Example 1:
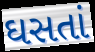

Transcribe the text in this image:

ઘસતાં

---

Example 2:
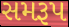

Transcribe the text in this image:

સમરૂપ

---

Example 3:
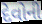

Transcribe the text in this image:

દેવોની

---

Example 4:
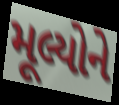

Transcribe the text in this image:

મૂલ્યોને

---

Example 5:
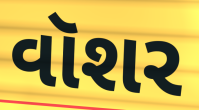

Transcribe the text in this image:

વૉશર